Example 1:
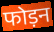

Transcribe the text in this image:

फोड़न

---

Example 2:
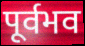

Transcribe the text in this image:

पूर्वभव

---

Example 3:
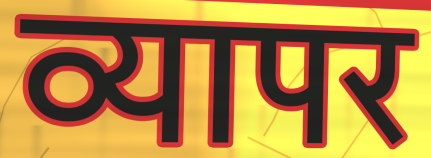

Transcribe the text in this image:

व्यापर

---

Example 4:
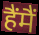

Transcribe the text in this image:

हैंमैं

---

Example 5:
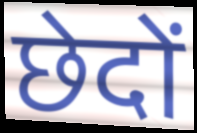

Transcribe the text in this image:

छेदों